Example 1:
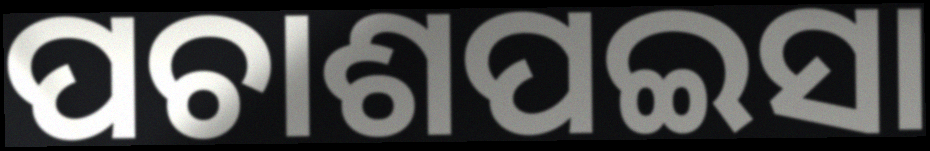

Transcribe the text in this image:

ପଚାଶପଇସା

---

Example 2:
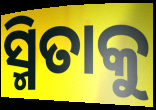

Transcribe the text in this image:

ସ୍ମିତାକୁ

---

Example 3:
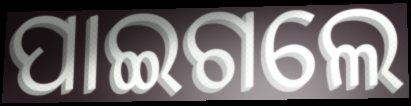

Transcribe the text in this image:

ପାଇଗଲେ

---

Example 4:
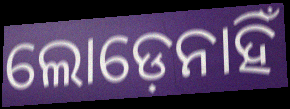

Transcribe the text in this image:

ଲୋଡ଼େନାହିଁ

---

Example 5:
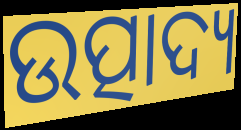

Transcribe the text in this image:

ଉତ୍ପାଦ୍ୟ